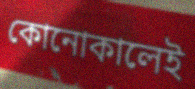
কোনোকালেই